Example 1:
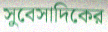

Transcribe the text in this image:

সুবেসাদিকের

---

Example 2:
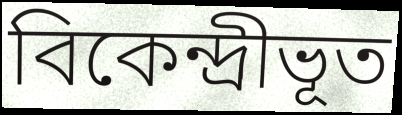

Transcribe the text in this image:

বিকেন্দ্রীভূত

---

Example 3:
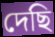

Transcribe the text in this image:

দেছি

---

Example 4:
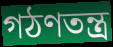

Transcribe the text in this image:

গঠণতন্ত্র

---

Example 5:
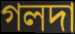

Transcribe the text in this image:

গলদা